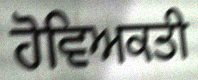
ਹੋਵਿਅਕਤੀ